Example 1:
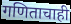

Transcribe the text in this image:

गणिताचाही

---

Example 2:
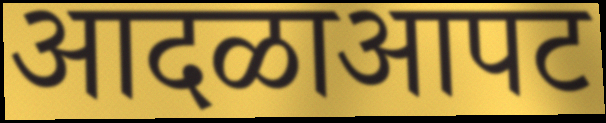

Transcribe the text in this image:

आदळाआपट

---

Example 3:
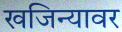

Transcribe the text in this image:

खजिन्यावर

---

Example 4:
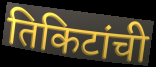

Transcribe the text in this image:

तिकिटांची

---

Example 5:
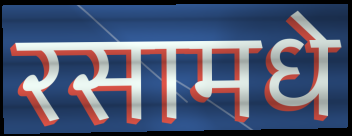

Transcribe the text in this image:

रसामधे